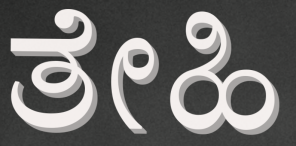
ತೇಹಿ